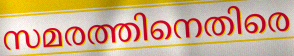
സമരത്തിനെതിരെ